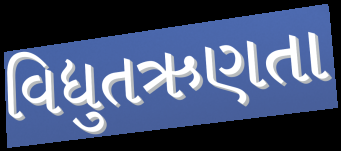
વિદ્યુતઋણતા